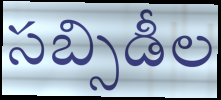
సబ్సిడీల